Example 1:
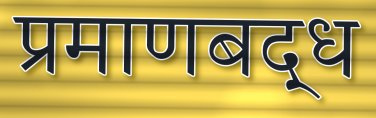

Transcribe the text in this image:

प्रमाणबद्ध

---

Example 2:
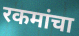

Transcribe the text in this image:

रकमांचा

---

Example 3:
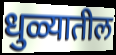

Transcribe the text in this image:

धुळ्यातील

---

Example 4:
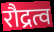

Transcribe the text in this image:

रौद्रत्व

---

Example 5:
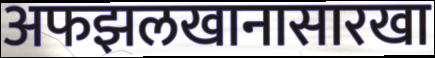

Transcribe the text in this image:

अफझलखानासारखा